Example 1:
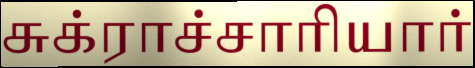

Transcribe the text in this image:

சுக்ராச்சாரியார்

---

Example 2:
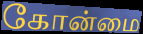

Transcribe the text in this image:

கோன்மை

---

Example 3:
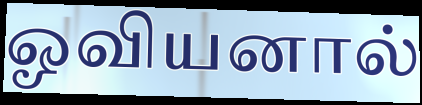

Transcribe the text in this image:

ஓவியனால்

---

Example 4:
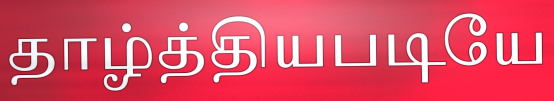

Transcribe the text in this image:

தாழ்த்தியபடியே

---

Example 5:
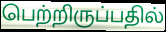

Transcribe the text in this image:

பெற்றிருப்பதில்